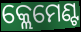
କ୍ଲେମେଣ୍ଟ